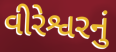
વીરેશ્વરનું